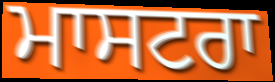
ਮਾਸਟਰਾ